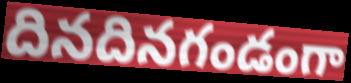
దినదినగండంగా